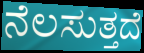
ನೆಲಸುತ್ತದೆ